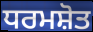
ਧਰਮਸ਼ੋਤ